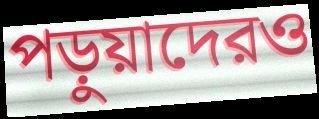
পড়ুয়াদেরও